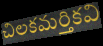
చిలకమర్తికవి